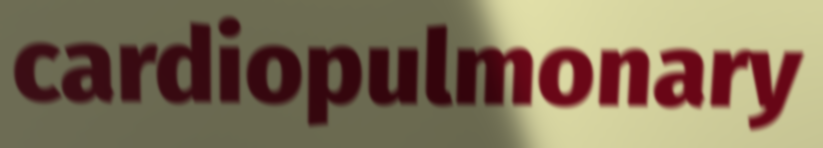
cardiopulmonary